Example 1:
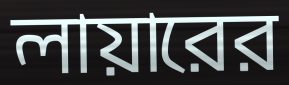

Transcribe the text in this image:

লায়ারের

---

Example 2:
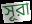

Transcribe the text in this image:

সূরা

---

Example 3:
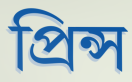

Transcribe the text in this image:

প্রিন্স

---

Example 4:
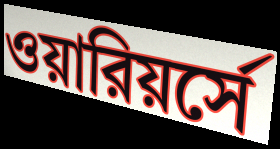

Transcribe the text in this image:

ওয়ারিয়র্সে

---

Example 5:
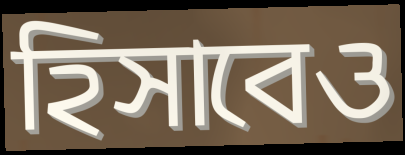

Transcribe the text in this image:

হিসাবেও